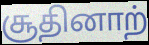
சூதினாற்